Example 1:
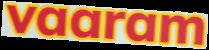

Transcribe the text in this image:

vaaram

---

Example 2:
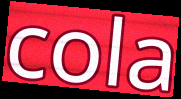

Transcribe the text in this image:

cola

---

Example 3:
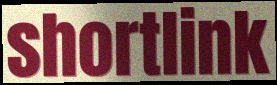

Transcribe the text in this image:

shortlink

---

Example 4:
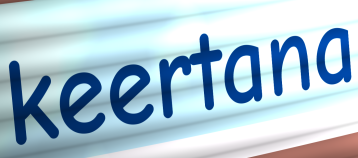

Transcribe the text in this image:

keertana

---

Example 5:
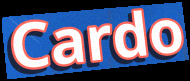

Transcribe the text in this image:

Cardo